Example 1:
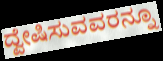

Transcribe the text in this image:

ದ್ವೇಷಿಸುವವರನ್ನೂ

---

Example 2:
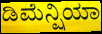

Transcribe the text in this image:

ಡಿಮೆನ್ಷಿಯಾ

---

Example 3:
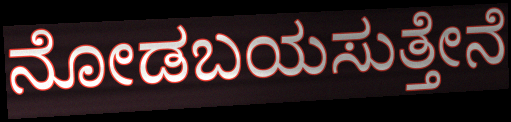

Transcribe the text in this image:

ನೋಡಬಯಸುತ್ತೇನೆ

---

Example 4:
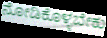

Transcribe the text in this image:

ನೋಡಿಕೊಳ್ಳಬೇಕು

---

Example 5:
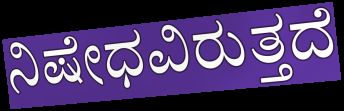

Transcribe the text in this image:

ನಿಷೇಧವಿರುತ್ತದೆ